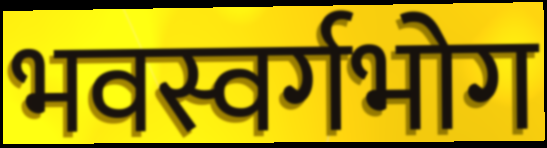
भवस्वर्गभोग